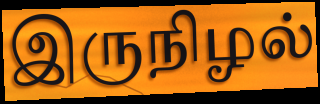
இருநிழல்